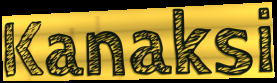
Kanaksi